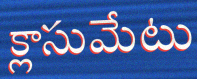
క్లాసుమేటు